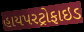
હાયપરટ્રોફાઇડ